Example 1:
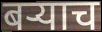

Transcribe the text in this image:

बर्‍याच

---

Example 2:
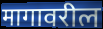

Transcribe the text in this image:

मागावरील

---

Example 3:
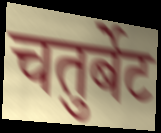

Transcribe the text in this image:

चतुर्बेट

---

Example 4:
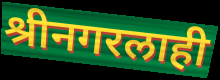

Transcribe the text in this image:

श्रीनगरलाही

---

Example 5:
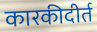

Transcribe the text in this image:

कारकीदीर्त